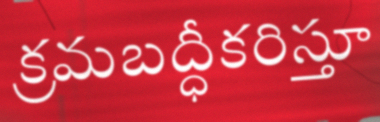
క్రమబద్ధీకరిస్తూ